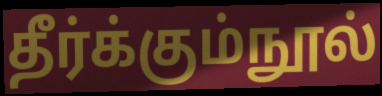
தீர்க்கும்நூல்